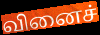
வினைச்